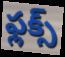
ఫ్లక్స్